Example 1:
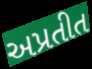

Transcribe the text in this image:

અપ્રતીત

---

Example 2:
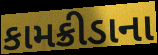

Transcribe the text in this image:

કામક્રીડાના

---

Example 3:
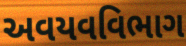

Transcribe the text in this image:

અવયવવિભાગ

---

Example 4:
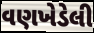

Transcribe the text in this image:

વણખેડેલી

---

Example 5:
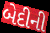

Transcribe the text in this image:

બેદીની